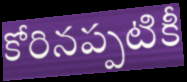
కోరినప్పటికీ